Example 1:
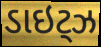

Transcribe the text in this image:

ડાઇટ્ઝ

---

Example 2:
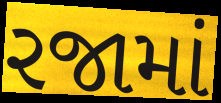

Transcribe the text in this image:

રજામાં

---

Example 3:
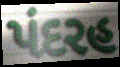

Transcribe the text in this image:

પંદરહ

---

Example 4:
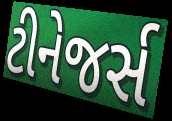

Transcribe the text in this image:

ટીનેજર્સ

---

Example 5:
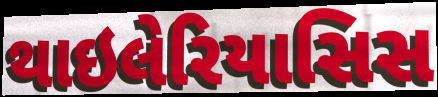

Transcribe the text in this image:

થાઇલેરિયાસિસ